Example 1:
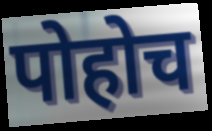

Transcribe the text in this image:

पोहोच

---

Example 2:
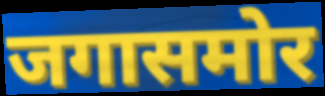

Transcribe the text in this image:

जगासमोर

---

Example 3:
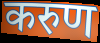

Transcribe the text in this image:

करुण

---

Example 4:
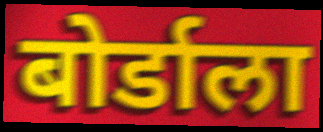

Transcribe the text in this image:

बोर्डाला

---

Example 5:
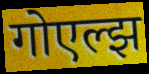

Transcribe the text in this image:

गोएल्झ